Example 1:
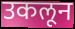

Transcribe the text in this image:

उकलून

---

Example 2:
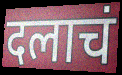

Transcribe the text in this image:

दलाचं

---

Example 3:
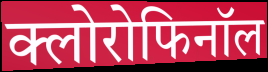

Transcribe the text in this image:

क्लोरोफिनॉल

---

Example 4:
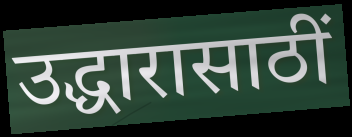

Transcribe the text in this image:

उद्धारासाठीं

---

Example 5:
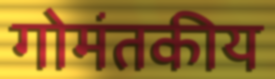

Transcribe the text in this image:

गोमंतकीय